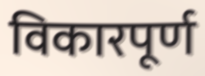
विकारपूर्ण